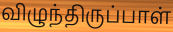
விழுந்திருப்பாள்